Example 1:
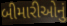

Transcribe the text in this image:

બીમારીઓનું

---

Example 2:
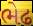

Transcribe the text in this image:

ભેઢ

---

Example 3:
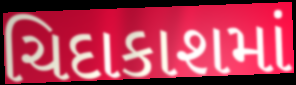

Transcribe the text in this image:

ચિદાકાશમાં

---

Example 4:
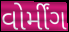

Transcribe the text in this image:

વોર્મીંગ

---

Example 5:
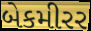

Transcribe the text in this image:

બેકમીરર